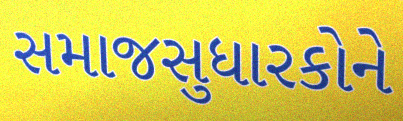
સમાજસુધારકોને